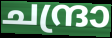
ചന്ദ്രാ